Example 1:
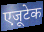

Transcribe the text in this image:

एजूटेक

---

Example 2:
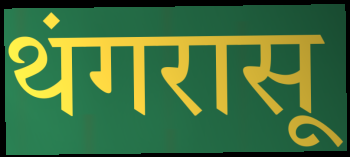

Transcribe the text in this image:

थंगरासू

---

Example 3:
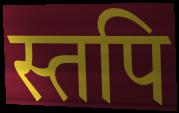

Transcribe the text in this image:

स्‍तपि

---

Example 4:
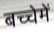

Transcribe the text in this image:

बच्चेमें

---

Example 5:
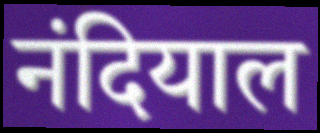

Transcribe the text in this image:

नंदियाल